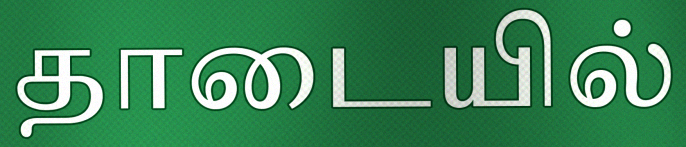
தாடையில்